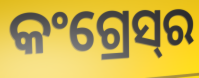
କଂଗ୍ରେସ୍‌ର